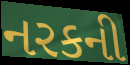
નરકની